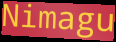
Nimagu